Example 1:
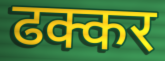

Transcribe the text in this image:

ढक्कर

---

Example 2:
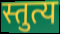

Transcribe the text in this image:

स्तुत्य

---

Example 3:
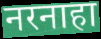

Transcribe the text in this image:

नरनाहा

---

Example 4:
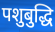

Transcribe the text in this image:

पशुबुद्धि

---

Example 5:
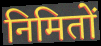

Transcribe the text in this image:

निमितों